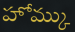
హోమ్కు